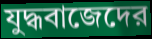
যুদ্ধবাজেদের